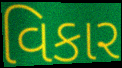
વિકાર